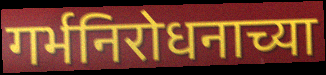
गर्भनिरोधनाच्या